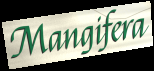
Mangifera